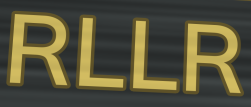
RLLR